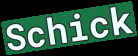
Schick